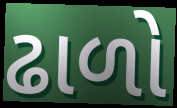
ઢાળો